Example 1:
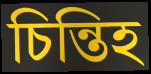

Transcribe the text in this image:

চিন্তিহ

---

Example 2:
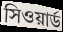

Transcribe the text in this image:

সিওয়ার্ড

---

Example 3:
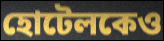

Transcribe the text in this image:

হোটেলকেও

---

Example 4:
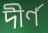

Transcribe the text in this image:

দীর্ণ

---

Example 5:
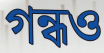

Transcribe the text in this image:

গন্ধও